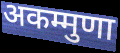
अकम्मुणा